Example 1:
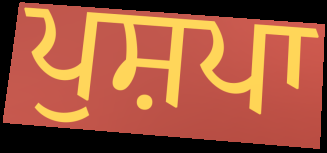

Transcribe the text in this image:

ਪੁਸ਼ਪਾ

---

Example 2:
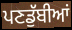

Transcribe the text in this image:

ਪਣਡੁੱਬੀਆਂ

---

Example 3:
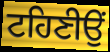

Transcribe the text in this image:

ਟਹਿਣੀਉਂ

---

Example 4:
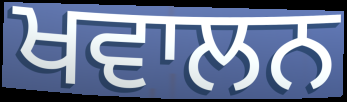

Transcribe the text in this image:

ਖਵਾਲਨ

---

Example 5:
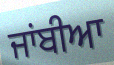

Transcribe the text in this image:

ਜਾਂਬੀਆ